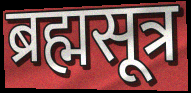
ब्रह्मसूत्र